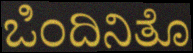
ಒಿಂದಿನಿತೊ